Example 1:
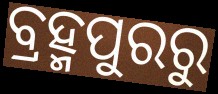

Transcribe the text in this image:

ବ୍ରହ୍ମପୁରରୁ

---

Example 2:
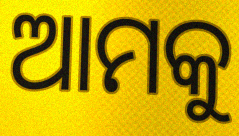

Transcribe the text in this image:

ଆମକୁ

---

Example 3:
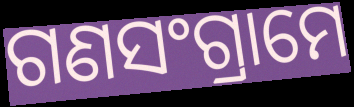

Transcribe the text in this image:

ଗଣସଂଗ୍ରାମେ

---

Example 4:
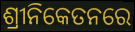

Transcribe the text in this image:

ଶ୍ରୀନିକେତନରେ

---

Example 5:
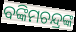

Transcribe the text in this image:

ବଙ୍କିମଚନ୍ଦ୍ରଙ୍କ